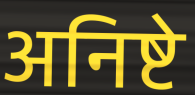
अनिष्टे